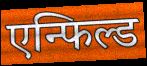
एन्फिल्ड